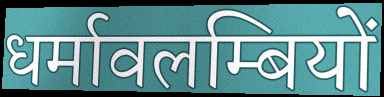
धर्मावलम्बियों